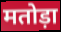
मतोड़ा